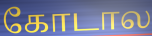
கோடால